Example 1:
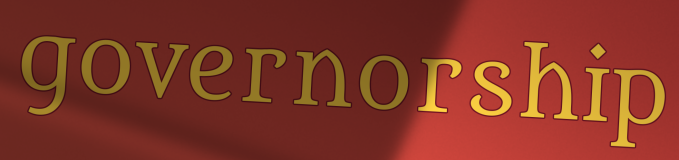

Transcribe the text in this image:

governorship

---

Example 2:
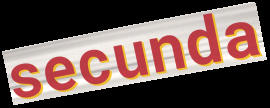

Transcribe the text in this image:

secunda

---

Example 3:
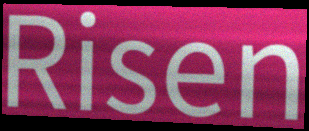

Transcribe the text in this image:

Risen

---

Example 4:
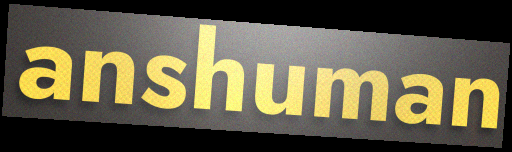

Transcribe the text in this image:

anshuman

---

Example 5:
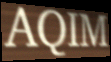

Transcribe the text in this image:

AQIM